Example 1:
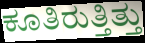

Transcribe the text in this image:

ಕೂತಿರುತ್ತಿತ್ತು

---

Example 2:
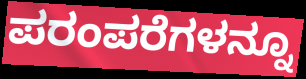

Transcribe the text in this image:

ಪರಂಪರೆಗಳನ್ನೂ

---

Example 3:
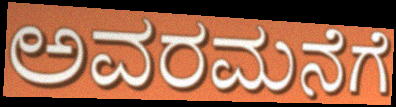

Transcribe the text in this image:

ಅವರಮನೆಗೆ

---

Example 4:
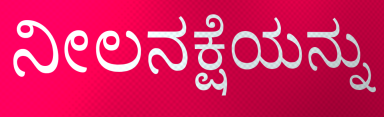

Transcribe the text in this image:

ನೀಲನಕ್ಷೆಯನ್ನು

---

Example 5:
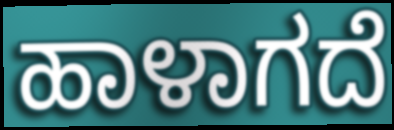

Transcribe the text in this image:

ಹಾಳಾಗದೆ